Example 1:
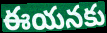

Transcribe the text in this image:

ఈయనకు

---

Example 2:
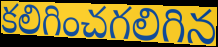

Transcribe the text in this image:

కలిగించగలిగిన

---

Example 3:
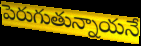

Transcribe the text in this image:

పెరుగుతున్నాయనే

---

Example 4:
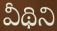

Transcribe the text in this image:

వీథిని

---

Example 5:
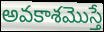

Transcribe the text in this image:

అవకాశమొస్తే